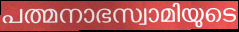
പത്മനാഭസ്വാമിയുടെ